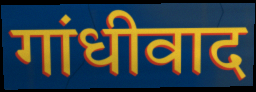
गांधीवाद